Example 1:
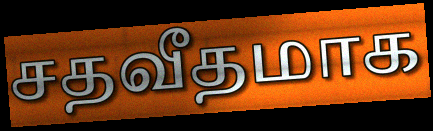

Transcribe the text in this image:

சதவீதமாக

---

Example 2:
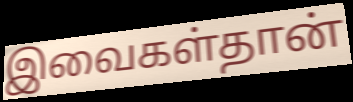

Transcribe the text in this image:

இவைகள்தான்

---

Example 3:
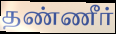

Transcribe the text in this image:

தண்ணீர்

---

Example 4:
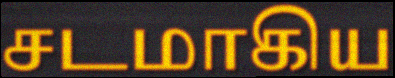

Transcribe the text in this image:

சடமாகிய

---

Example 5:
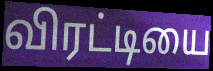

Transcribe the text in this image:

விரட்டியை